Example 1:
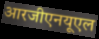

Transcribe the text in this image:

आरजीएनयूएल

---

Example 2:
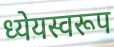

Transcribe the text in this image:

ध्येयस्वरूप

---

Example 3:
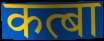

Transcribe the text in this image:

कत्बा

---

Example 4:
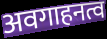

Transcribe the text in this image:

अवगाहनत्व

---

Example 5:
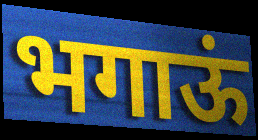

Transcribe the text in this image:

भगाऊं